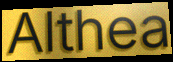
Althea